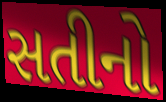
સતીનો